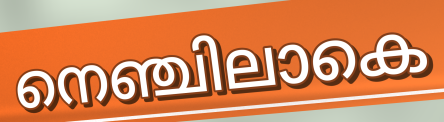
നെഞ്ചിലാകെ